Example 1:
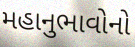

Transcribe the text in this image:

મહાનુભાવોનો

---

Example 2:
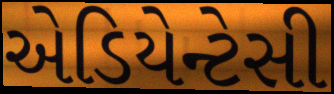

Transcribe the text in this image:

એડિયેન્ટેસી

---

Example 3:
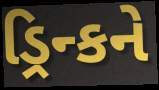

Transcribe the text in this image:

ડ્રિન્કને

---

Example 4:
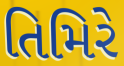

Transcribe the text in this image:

તિમિરે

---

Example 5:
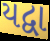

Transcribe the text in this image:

યદ્વા